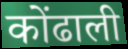
कोंढाली